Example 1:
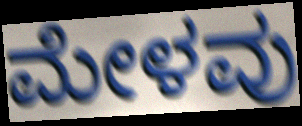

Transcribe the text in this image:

ಮೇಳವು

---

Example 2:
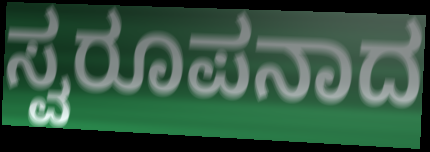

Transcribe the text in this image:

ಸ್ವರೂಪನಾದ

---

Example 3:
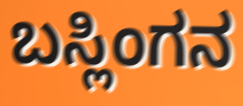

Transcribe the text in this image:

ಬಸ್ಲಿಂಗನ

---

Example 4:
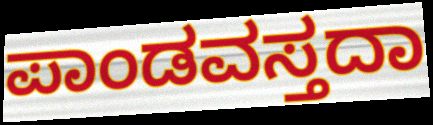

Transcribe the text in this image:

ಪಾಂಡವಸ್ತದಾ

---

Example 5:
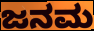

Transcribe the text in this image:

ಜನಮ